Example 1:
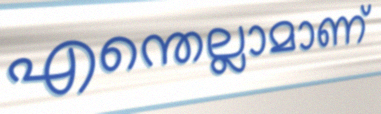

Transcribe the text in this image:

എന്തെല്ലാമാണ്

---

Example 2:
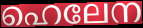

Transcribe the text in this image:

ഹെലേന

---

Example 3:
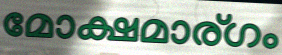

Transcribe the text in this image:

മോക്ഷമാര്ഗം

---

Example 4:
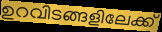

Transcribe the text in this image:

ഉറവിടങ്ങളിലേക്ക്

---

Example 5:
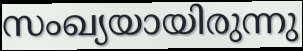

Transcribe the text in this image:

സംഖ്യയായിരുന്നു